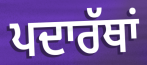
ਪਦਾਰੱਥਾਂ